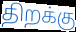
திறக்கு